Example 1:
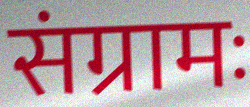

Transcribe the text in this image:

संग्रामः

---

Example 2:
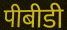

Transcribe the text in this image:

पीबीडी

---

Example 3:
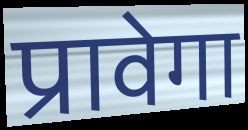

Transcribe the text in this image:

प्रावेगा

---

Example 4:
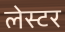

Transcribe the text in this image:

लेस्टर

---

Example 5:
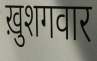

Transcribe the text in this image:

ख़ुशगवार